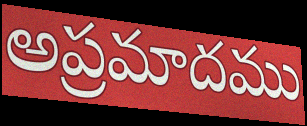
అప్రమాదము